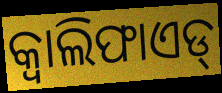
କ୍ୱାଲିଫାଏଡ୍